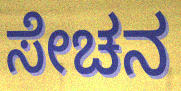
ಸೇಚನ